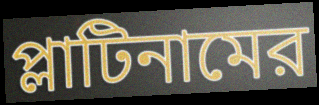
প্লাটিনামের